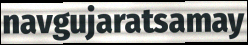
navgujaratsamay